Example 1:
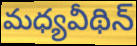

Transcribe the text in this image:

మధ్యవీథిన్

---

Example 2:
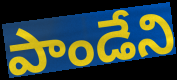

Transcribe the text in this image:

పాండేని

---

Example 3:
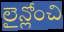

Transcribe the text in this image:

లైన్లోంచి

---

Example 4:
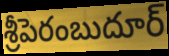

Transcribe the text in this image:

శ్రీపెరంబుదూర్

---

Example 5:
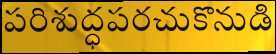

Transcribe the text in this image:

పరిశుద్ధపరచుకొనుడి